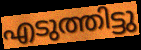
എടുത്തിട്ടു